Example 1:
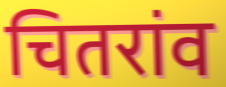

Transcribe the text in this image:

चितरांव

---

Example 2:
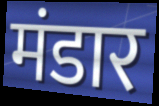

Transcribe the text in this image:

मंडार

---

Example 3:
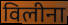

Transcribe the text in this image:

विलीना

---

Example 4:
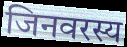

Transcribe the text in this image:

जिनवरस्य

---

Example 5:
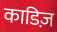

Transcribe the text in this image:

काडिज़